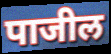
पाजील